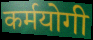
कर्मयोगी